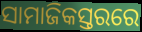
ସାମାଜିକସ୍ତରରେ